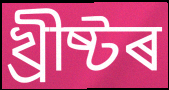
খ্ৰীষ্টৰ